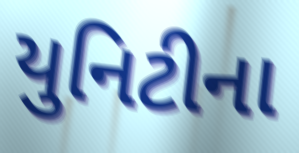
યુનિટીના